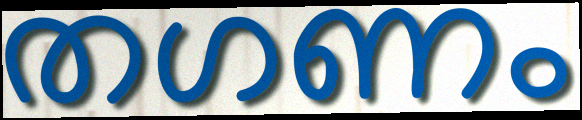
തഗണം